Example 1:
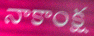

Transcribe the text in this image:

నాకాంక్ష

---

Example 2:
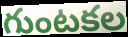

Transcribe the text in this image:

గుంటకల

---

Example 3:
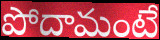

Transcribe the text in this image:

పోదామంటే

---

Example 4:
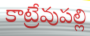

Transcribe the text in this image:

కాట్రేవుపల్లి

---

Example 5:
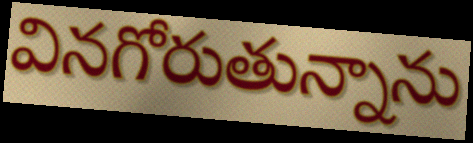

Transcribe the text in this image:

వినగోరుతున్నాను